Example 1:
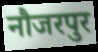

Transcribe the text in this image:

नौजरपुर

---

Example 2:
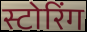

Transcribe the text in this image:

स्टोरिंग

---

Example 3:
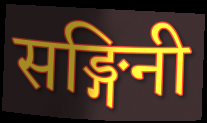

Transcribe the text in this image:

सङ्गिनी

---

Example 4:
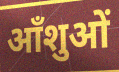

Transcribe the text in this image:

आँशुओं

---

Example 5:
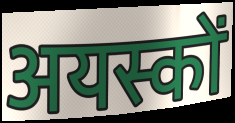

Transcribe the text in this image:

अयस्कों